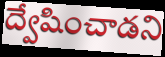
ద్వేషించాడని